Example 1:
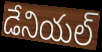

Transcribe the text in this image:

డేనియల్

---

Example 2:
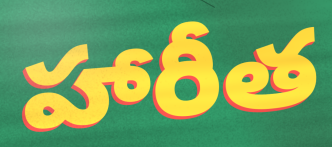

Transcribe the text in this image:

హారీత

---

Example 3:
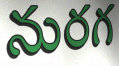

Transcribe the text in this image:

నురగ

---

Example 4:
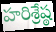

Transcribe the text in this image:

హరిశ్రేష్ఠ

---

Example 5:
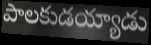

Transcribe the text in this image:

పాలకుడయ్యాడు